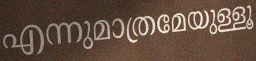
എന്നുമാത്രമേയുള്ളൂ